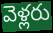
వెళ్లరు